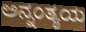
ಅನ್ನಂತ್ಯಯ